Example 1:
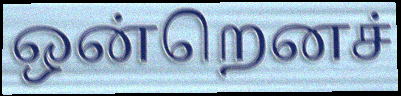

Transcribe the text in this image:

ஒன்றெனச்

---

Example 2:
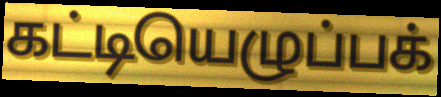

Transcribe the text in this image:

கட்டியெழுப்பக்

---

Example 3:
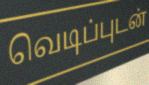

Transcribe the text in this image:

வெடிப்புடன்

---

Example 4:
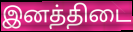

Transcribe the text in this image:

இனத்திடை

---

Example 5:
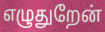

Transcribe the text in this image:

எழுதுறேன்